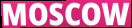
MOSCOW